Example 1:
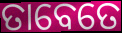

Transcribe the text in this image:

ତାବେତେ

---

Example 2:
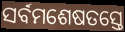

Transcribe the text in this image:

ସର୍ବମଶେଷତସ୍ତେ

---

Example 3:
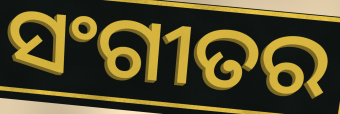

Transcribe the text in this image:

ସଂଗୀତର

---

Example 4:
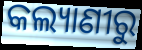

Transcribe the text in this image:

କଲ୍ୟାଣୀରୁ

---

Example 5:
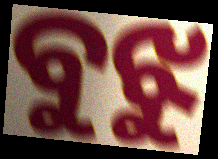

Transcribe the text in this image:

ବୁଝୁ